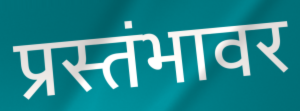
प्रस्तंभावर